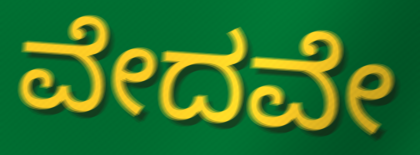
ವೇದವೇ